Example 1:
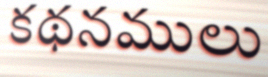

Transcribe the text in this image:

కథనములు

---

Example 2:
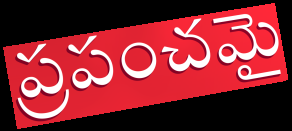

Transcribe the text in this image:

ప్రపంచమై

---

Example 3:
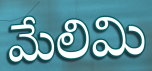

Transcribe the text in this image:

మేలిమి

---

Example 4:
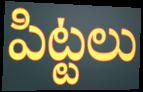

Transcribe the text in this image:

పిట్టలు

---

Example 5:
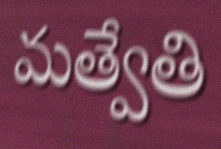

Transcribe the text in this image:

మత్వేతి